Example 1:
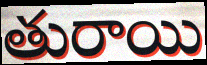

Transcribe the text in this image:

తురాయి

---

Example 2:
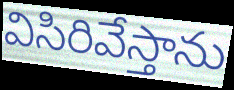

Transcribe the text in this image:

విసిరివేస్తాను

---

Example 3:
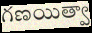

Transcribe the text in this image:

గణయిత్వా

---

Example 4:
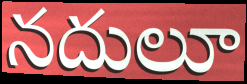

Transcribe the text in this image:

నదులూ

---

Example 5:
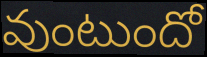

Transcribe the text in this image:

వుంటుందో